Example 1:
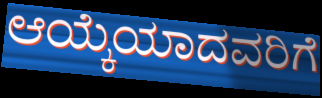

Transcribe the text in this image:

ಆಯ್ಕೆಯಾದವರಿಗೆ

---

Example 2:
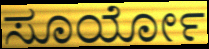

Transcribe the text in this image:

ಸೂರ್ಯೋ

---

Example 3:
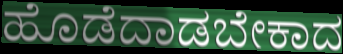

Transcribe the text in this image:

ಹೊಡೆದಾಡಬೇಕಾದ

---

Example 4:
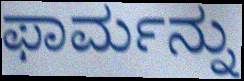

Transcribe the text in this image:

ಫಾರ್ಮನ್ನು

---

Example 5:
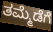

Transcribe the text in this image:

ತಮ್ಮೆಡೆಗೆ